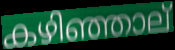
കഴിഞ്ഞാല്